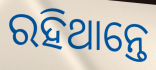
ରହିଥାନ୍ତେ